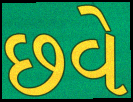
છવે